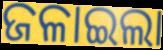
ଜଳାଇଲା